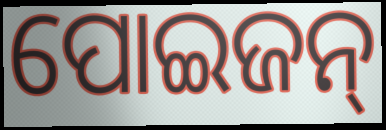
ପୋଇଜନ୍